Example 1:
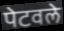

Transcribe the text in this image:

पेटवले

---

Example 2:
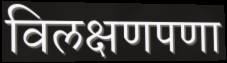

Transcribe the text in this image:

विलक्षणपणा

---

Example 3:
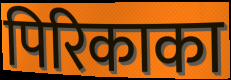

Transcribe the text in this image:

पिरिकाका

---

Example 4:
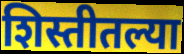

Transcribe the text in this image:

शिस्तीतल्या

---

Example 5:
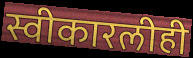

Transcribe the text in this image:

स्वीकारलीही